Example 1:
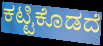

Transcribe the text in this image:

ಕಟ್ಟಿಕೊಡದೆ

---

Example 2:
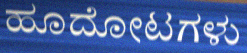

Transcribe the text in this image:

ಹೂದೋಟಗಳು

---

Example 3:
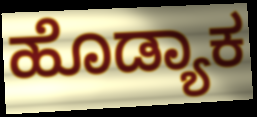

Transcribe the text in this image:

ಹೊಡ್ಯಾಕ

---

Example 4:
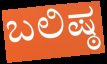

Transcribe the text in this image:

ಬಲಿಷ್ಠ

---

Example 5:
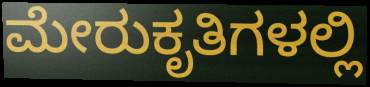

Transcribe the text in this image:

ಮೇರುಕೃತಿಗಳಲ್ಲಿ